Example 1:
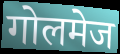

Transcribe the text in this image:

गोलमेज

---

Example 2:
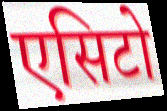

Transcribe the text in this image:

एसिटो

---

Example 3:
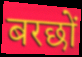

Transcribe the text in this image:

बरछों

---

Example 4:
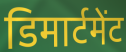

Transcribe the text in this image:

डिमार्टमेंट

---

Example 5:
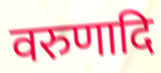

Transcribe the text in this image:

वरुणादि